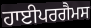
ਹਾਈਪਰਗੈਮਸ